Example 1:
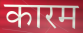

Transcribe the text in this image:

कारम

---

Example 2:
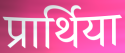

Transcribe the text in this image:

प्रार्थिया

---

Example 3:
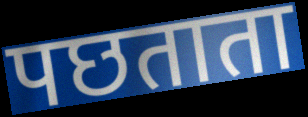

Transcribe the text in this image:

पछताता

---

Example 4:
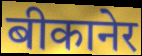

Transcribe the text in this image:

बीकानेर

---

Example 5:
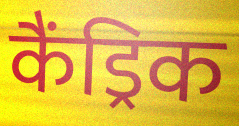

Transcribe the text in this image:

कैंड्रिक